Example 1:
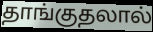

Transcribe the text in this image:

தாங்குதலால்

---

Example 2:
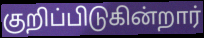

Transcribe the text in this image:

குறிப்பிடுகின்றார்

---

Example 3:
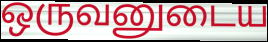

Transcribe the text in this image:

ஒருவனுடைய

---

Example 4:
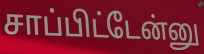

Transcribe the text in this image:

சாப்பிட்டேன்னு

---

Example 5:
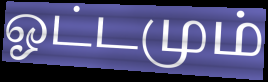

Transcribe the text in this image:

ஓட்டமும்